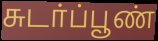
சுடர்ப்பூண்